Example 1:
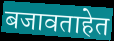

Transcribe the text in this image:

बजावताहेत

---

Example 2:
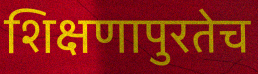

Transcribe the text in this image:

शिक्षणापुरतेच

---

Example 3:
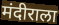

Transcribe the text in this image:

मंदीराला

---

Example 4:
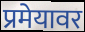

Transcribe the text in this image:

प्रमेयावर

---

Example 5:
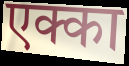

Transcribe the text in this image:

एक्का